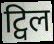
ट्विल